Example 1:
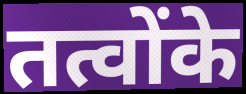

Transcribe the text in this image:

तत्वोंके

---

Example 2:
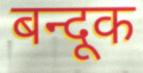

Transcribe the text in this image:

बन्दूक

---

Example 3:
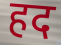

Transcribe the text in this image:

हद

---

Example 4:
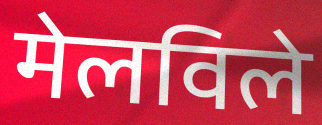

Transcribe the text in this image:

मेलविले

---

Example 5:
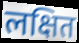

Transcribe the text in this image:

लक्षित